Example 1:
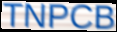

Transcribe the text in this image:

TNPCB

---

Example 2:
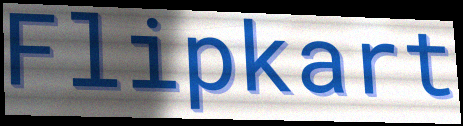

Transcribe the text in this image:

Flipkart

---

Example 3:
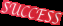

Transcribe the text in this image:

SUCCESS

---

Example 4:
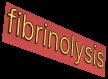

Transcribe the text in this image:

fibrinolysis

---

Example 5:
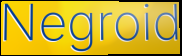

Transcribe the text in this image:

Negroid